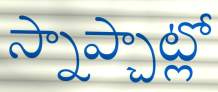
స్నాప్చాట్లో